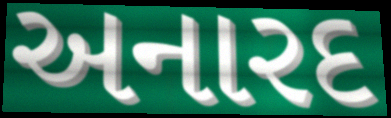
અનારદ